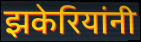
झकेरियांनी